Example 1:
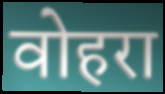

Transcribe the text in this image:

वोहरा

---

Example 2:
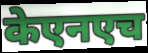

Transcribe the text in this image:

केएनएच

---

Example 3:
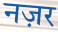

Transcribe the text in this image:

नज़र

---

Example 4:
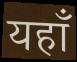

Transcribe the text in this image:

यहाँ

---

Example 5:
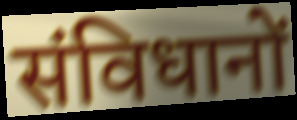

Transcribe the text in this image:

संविधानों